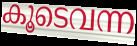
കൂടെവന്ന